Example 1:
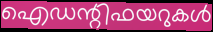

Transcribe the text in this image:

ഐഡന്റിഫയറുകൾ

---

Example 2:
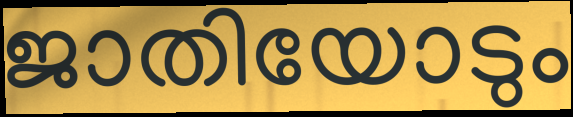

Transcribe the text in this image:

ജാതിയോടും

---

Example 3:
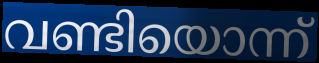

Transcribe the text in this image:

വണ്ടിയൊന്ന്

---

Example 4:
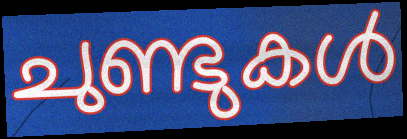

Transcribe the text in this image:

ചുണ്ടുകൾ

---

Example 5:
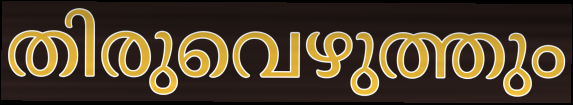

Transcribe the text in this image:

തിരുവെഴുത്തും